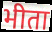
भीता